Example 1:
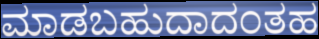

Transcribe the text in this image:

ಮಾಡಬಹುದಾದಂತಹ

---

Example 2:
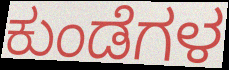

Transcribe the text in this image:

ಕುಂಡೆಗಳ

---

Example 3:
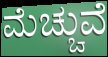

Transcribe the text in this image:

ಮೆಚ್ಚುವೆ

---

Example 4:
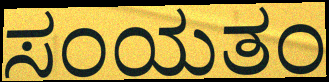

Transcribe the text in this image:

ಸಂಯತಂ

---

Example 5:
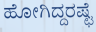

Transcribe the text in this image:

ಹೋಗಿದ್ದರಷ್ಟೆ